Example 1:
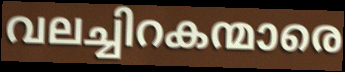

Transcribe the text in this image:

വലച്ചിറകന്മാരെ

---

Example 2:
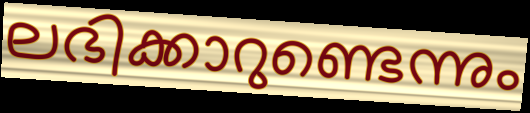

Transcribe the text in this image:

ലഭിക്കാറുണ്ടെന്നും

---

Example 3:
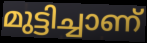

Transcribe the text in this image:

മുട്ടിച്ചാണ്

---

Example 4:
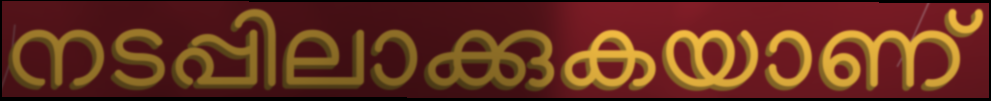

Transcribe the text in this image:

നടപ്പിലാക്കുകയാണ്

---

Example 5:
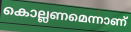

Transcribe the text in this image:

കൊല്ലണമെന്നാണ്